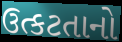
ઉત્કટતાનો